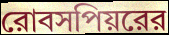
রোবসপিয়রের